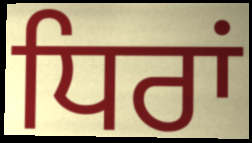
ਧਿਰਾਂ